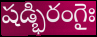
షడ్భిరంగైః